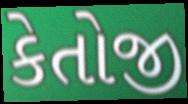
કેતોજી